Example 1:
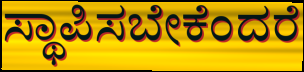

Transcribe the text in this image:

ಸ್ಥಾಪಿಸಬೇಕೆಂದರೆ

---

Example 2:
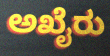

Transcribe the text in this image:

ಅಖೈರು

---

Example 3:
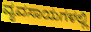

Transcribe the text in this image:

ವ್ಯವಸಾಯಗಳಲ್ಲಿ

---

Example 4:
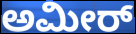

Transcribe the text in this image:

ಅಮೀರ್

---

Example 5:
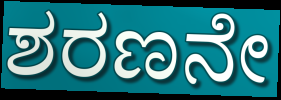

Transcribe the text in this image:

ಶರಣನೇ